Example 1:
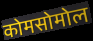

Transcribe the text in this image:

कोमसोमोल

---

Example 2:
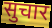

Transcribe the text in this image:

सुचार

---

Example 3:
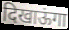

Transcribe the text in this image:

दिखाऊंगा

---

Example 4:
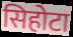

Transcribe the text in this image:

सिहोटा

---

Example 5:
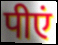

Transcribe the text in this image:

पीएं